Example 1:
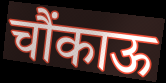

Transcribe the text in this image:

चौंकाऊ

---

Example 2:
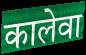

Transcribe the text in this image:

कालेवा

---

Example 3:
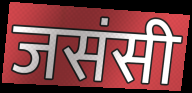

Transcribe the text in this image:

जसंसी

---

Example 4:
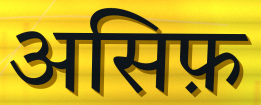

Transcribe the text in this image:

असिफ़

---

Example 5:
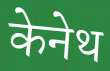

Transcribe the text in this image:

केनेथ